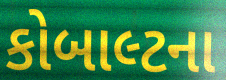
કોબાલ્ટના